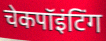
चेकपॉइंटिंग